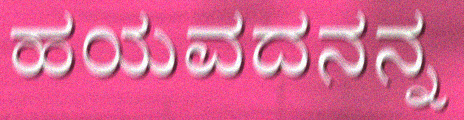
ಹಯವದನನ್ನ